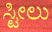
ಸ್ಟೀಲು